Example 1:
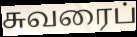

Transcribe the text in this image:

சுவரைப்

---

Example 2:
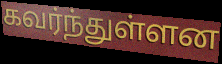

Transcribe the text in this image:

கவர்ந்துள்ளன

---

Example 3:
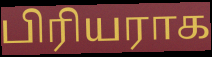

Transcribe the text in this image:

பிரியராக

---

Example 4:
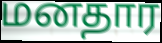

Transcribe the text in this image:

மனதார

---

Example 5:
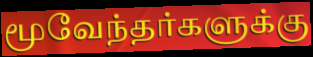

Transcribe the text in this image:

மூவேந்தர்களுக்கு